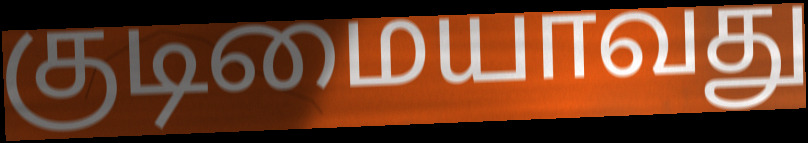
குடிமையாவது